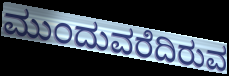
ಮುಂದುವರೆದಿರುವ